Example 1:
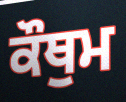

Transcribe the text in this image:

ਕੌਥੁਮ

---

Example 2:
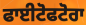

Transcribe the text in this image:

ਫਾਈਟੋਫਟੋਰਾ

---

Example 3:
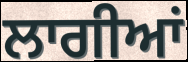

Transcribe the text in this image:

ਲਾਗੀਆਂ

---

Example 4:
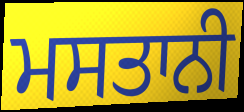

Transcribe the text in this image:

ਮਸਤਾਨੀ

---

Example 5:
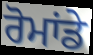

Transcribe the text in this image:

ਰੋਮਾਂਡੇ